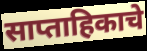
साप्ताहिकाचे